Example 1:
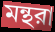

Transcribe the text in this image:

মন্থরা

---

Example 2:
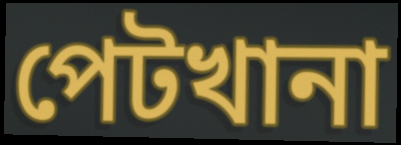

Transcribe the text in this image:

পেটখানা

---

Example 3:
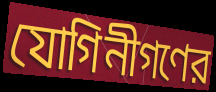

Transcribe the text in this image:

যোগিনীগণের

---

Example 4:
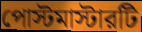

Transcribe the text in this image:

পোস্টমাস্টারটি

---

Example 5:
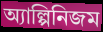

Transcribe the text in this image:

অ্যাল্পিনিজম